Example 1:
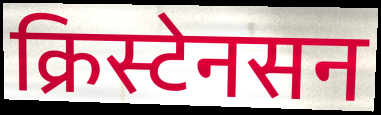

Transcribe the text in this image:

क्रिस्टेनसन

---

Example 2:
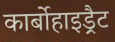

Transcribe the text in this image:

कार्बोहाइड्रैट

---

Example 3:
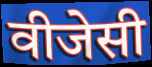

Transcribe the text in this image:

वीजेसी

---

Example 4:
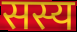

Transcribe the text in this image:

सस्य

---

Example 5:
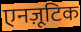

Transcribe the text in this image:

एनज़ूटिक